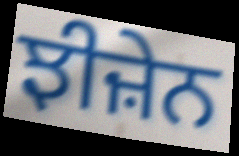
ਝੀਜ਼ੇਨ